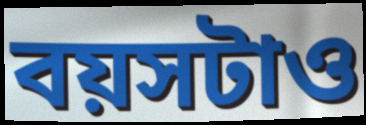
বয়সটাও